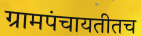
ग्रामपंचायतीतच